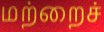
மற்றைச்